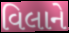
વિલાને